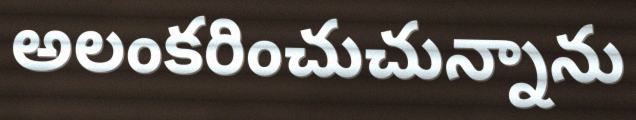
అలంకరించుచున్నాను